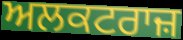
ਅਲਕਟਰਾਜ਼